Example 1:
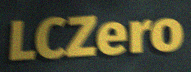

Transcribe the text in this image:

LCZero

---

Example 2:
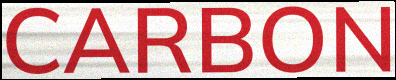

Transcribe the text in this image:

CARBON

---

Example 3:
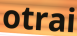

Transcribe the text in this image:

otrai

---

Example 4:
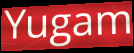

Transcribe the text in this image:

Yugam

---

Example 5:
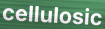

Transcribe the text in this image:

cellulosic